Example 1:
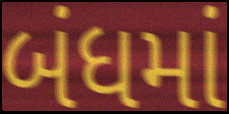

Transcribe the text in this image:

બંધમાં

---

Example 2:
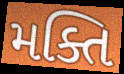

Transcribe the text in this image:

મક્તિ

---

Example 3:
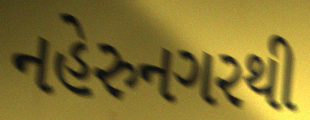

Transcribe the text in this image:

નહેરુનગરથી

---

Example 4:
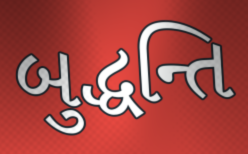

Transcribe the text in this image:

બુદ્ધન્તિ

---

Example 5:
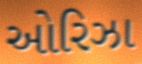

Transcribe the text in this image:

ઓરિઝા